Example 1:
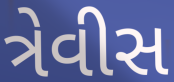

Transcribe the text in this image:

ત્રેવીસ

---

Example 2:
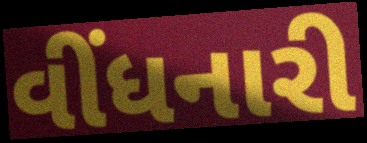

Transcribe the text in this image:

વીંધનારી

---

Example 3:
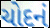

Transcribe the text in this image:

ચોદનં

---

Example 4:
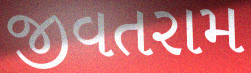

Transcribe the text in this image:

જીવતરામ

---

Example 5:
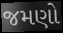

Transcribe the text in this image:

જમણો